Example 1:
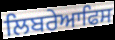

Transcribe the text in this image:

ਲਿਬਰੇਆਫਿਸ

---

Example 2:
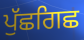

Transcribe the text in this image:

ਪੁੱਛਗਿਛ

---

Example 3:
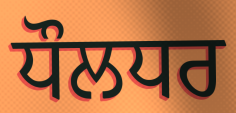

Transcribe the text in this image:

ਧੌਲਧਰ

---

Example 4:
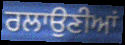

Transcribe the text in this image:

ਰਲਾਉਣੀਆਂ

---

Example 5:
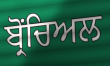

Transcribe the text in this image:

ਬ੍ਰੋਂਚਿਅਲ